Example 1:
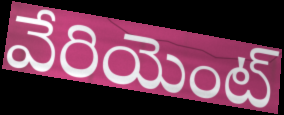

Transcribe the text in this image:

వేరియెంట్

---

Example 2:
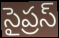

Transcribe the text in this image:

సైప్రస్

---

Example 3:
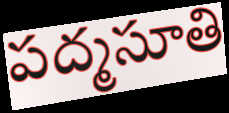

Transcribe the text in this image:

పద్మసూతి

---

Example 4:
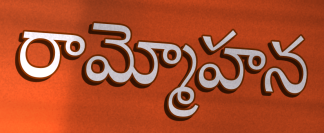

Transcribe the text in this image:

రామ్మోహన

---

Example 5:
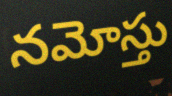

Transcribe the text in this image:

నమోస్తు